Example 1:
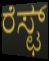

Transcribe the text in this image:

ರೆಸ್ಟ್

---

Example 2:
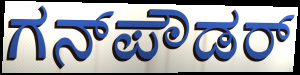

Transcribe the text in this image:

ಗನ್‌ಪೌಡರ್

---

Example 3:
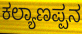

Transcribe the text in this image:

ಕಲ್ಯಾಣಪ್ಪನ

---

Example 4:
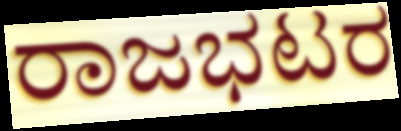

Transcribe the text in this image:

ರಾಜಭಟರ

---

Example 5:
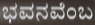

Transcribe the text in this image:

ಭವನವೆಂಬ